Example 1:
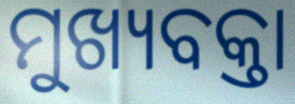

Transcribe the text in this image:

ମୁଖ୍ୟବକ୍ତା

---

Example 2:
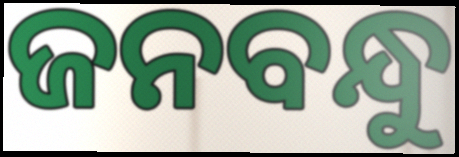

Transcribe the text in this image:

ଜନବନ୍ଧୁ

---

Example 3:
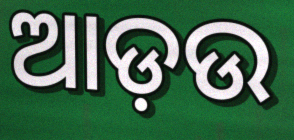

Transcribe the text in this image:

ଆଡ଼ଉ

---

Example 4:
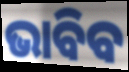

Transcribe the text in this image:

ଭାବିବ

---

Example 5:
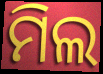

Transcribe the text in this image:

ମିଲ